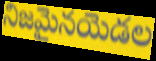
నిజమైనయెడల